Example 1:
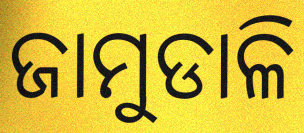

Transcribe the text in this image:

ଜାମୁଡାଳି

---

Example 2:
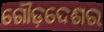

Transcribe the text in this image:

ଗୌଡ଼ଦେଶର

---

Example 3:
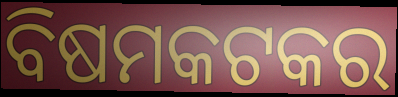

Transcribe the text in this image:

ବିଷମକଟକର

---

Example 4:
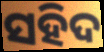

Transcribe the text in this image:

ସହିଦ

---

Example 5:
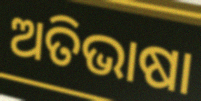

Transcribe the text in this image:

ଅତିଭାଷା